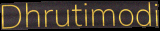
Dhrutimodi